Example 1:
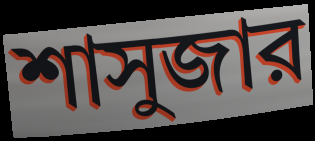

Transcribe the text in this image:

শাসুজার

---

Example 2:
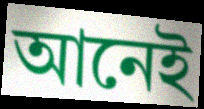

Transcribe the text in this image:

আনেই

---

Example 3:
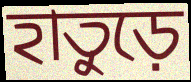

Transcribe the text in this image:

হাতুড়ে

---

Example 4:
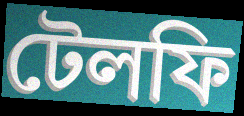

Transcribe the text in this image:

টেলফি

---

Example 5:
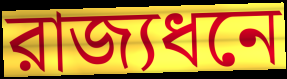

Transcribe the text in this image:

রাজ্যধনে